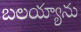
బలయ్యాను